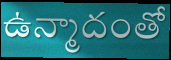
ఉన్మాదంతో